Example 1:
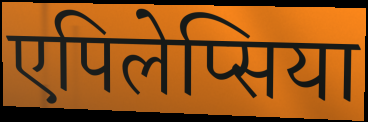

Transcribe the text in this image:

एपिलेप्सिया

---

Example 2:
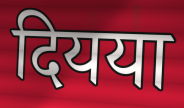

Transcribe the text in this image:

दियया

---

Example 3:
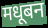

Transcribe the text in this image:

मधूबन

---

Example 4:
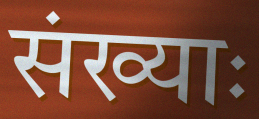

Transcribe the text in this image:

संख्याः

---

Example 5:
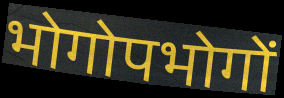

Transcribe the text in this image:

भोगोपभोगों